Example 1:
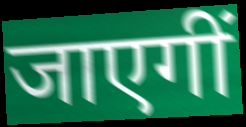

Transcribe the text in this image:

जाएगीं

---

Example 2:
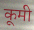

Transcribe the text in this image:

कूमी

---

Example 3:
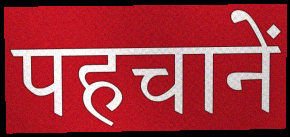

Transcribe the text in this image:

पहचानें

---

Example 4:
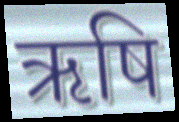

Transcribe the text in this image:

ऋषि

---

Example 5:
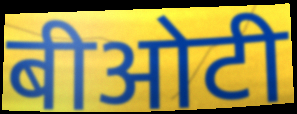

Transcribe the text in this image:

बीओटी